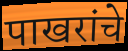
पाखरांचे